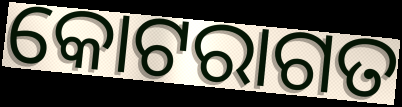
କୋଟରାଗତ